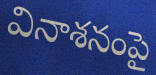
వినాశనంపై